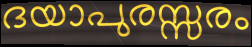
ദയാപുരസ്സരം